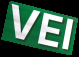
VEI